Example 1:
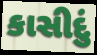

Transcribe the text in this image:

કાસીદું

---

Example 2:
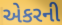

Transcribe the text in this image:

એકરની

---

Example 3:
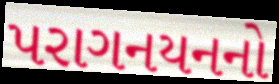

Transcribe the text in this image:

પરાગનયનનો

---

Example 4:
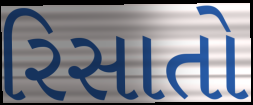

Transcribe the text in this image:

રિસાતો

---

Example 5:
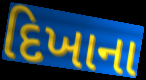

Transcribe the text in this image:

દિખાના